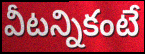
వీటన్నికంటే